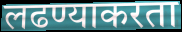
लढण्याकरता